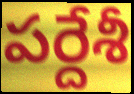
పర్దేశీ